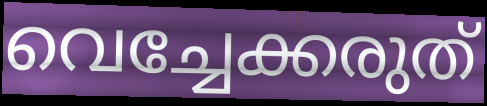
വെച്ചേക്കരുത്